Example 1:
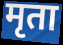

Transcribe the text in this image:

मृता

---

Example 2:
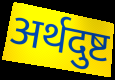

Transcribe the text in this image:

अर्थदुष्ट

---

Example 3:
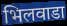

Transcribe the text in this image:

भिलवाडा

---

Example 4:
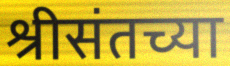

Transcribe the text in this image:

श्रीसंतच्या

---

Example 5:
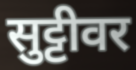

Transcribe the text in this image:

सुट्टीवर